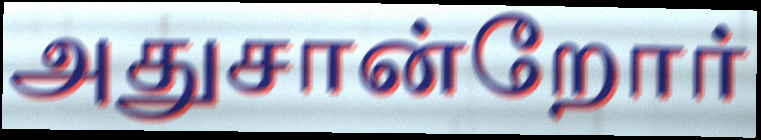
அதுசான்றோர்